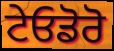
ਟੇਓਡੋਰੋ